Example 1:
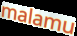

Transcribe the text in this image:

malamu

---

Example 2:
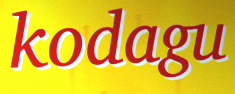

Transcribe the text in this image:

kodagu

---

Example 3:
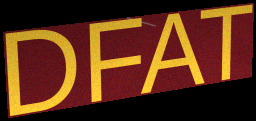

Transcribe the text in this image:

DFAT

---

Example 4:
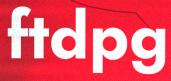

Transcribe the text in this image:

ftdpg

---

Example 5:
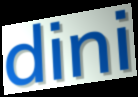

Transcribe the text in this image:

dini